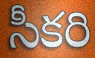
సీకరి